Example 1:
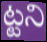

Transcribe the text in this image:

ట్టని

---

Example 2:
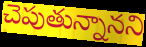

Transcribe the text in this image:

చెపుతున్నానని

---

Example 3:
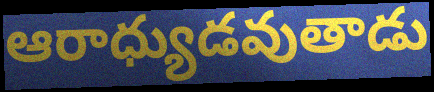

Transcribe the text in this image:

ఆరాధ్యుడవుతాడు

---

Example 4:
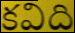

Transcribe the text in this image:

కవిది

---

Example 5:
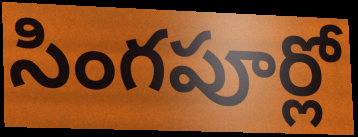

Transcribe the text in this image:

సింగపూర్లో